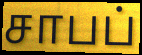
சாபப்